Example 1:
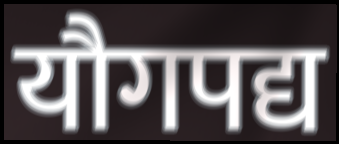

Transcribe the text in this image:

यौगपद्य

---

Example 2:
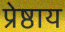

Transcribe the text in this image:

प्रेष्ठाय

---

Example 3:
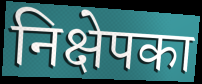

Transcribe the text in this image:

निक्षेपका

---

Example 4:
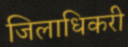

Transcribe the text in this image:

जिलाधिकरी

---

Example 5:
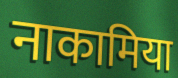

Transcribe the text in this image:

नाकामिया